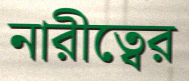
নারীত্বের